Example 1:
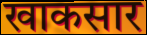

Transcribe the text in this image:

खाकसार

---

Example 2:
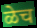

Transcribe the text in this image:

ळेच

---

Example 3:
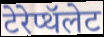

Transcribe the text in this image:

टेरेप्थॅलेट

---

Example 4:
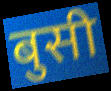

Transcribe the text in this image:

बुसी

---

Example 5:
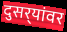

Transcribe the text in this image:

दुसर्‍यांवर